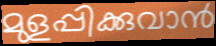
മുളപ്പിക്കുവാൻ